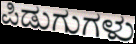
ಪಿಡುಗುಗಳು